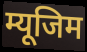
म्यूजिम